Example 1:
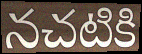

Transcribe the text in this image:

నచటికి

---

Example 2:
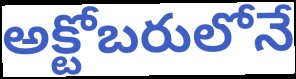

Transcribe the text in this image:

అక్టోబరులోనే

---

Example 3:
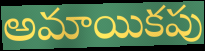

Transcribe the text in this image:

అమాయికపు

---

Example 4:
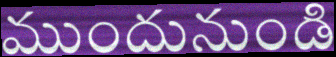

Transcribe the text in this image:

ముందునుండి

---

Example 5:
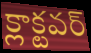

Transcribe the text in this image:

క్లాక్టవర్